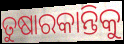
ତୁଷାରକାନ୍ତିକୁ